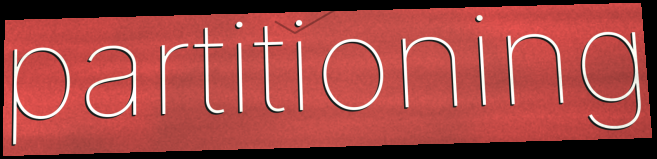
partitioning